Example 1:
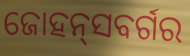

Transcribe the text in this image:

ଜୋହନ୍‌ସବର୍ଗର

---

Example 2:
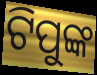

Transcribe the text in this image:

ଟିପୁଙ୍କ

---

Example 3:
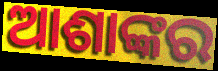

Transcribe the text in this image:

ଆଶାଙ୍କର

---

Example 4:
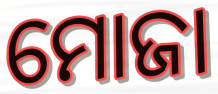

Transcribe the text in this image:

ମୋଜା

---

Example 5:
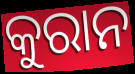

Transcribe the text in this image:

କୁରାନ